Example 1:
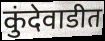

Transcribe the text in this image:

कुंदेवाडीत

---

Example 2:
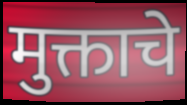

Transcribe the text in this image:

मुक्ताचे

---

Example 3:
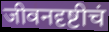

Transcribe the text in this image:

जीवनदृष्टीचं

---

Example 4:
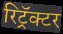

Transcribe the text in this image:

रिट्रॅक्टर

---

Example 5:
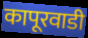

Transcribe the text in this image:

कापूरवाडी